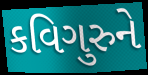
કવિગુરુને